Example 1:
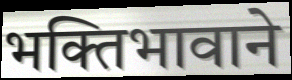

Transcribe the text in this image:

भक्तिभावाने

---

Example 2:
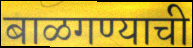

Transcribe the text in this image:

बाळगण्याची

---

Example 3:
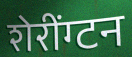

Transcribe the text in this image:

शेरींग्टन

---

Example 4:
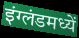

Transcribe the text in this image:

इंग्लंडमध्यें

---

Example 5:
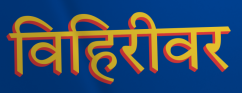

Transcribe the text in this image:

विहिरीवर